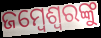
ଜମ୍ବେଶ୍ୱରଙ୍କୁ